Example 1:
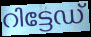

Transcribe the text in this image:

റിട്ടേഡ്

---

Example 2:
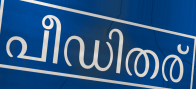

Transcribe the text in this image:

പീഡിതര്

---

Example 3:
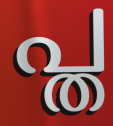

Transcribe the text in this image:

പ്ത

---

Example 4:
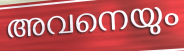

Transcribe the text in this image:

അവനെയും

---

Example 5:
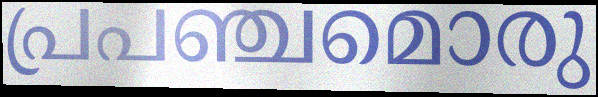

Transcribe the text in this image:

പ്രപഞ്ചമൊരു